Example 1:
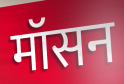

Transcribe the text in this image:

मॉसन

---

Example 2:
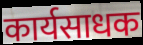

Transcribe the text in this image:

कार्यसाधक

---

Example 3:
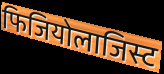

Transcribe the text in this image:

फिजियोलाजिस्ट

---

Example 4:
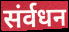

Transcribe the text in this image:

संर्वधन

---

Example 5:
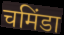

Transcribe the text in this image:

चमिंडा